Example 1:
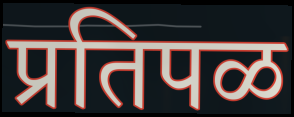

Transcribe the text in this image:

प्रतिपळ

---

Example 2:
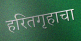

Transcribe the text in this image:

हरितगृहाचा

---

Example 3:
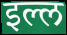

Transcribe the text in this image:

इल्ल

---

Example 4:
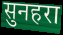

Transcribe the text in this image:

सुनहरा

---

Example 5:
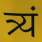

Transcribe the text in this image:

त्र्यं